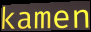
kamen